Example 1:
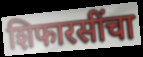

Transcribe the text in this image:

शिफारसींचा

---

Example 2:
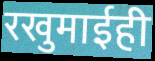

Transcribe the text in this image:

रखुमाईही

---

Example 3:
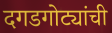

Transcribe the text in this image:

दगडगोट्यांची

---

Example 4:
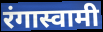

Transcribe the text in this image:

रंगास्वामी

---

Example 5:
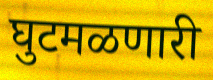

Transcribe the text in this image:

घुटमळणारी